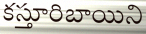
కస్తూరిబాయిని